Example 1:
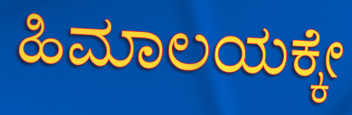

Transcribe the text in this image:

ಹಿಮಾಲಯಕ್ಕೇ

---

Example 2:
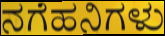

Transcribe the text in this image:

ನಗೆಹನಿಗಳು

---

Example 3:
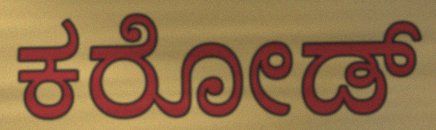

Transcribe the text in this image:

ಕರೋಡ್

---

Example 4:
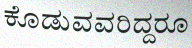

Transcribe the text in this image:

ಕೊಡುವವರಿದ್ದರೂ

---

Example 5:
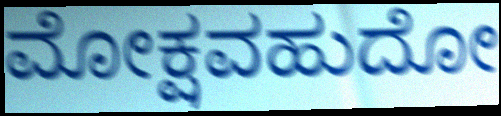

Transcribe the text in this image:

ಮೋಕ್ಷವಹುದೋ